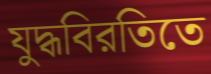
যুদ্ধবিরতিতে